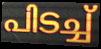
പിടച്ച്